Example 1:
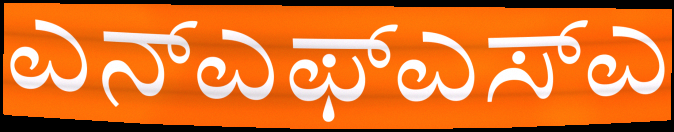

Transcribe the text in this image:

ಎನ್ಎಫ್ಎಸ್ಎ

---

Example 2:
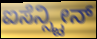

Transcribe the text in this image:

ಐಸೆನ್ಸ್ಟೀನ್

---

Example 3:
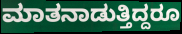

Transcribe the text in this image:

ಮಾತನಾಡುತ್ತಿದ್ದರೂ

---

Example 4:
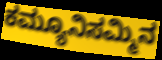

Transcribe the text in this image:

ಕಮ್ಯೂನಿಸಮ್ಮಿನ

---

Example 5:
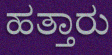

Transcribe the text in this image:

ಹತ್ತಾರು